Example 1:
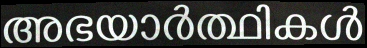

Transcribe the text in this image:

അഭയാർത്ഥികൾ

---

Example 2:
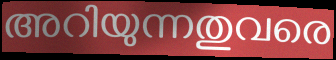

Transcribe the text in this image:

അറിയുന്നതുവരെ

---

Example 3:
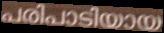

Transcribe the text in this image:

പരിപാടിയായ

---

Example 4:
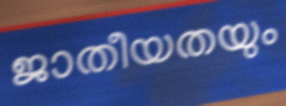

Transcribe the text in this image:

ജാതീയതയും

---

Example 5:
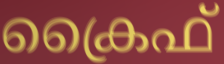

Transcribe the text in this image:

ക്രൈഫ്